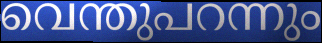
വെന്തുപറന്നും